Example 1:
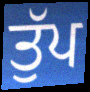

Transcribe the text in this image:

ਤੁੱਪ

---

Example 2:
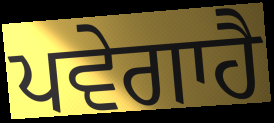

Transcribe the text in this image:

ਪਵੇਗਾਹੈ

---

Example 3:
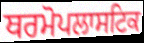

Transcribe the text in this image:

ਥਰਮੋਪਲਾਸਟਿਕ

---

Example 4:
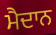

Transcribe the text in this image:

ਮੈਦਾਨ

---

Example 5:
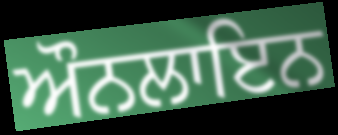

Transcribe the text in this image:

ਔਨਲਾਇਨ